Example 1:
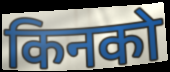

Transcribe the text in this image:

किनको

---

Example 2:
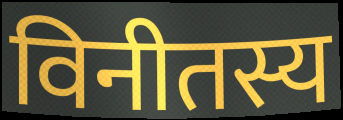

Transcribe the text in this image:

विनीतस्य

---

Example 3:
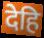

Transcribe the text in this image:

देहि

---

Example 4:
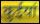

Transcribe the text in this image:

कुईयां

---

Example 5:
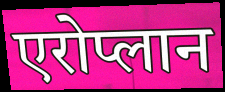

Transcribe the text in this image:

एरोप्लान